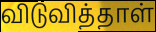
விடுவித்தாள்